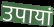
उपायां